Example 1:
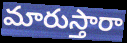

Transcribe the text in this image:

మారుస్తారా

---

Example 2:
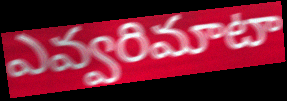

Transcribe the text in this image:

ఎవ్వరిమాటా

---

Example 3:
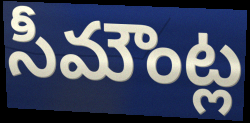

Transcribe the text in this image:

సీమౌంట్ల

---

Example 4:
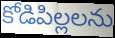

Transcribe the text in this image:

కోడిపిల్లలను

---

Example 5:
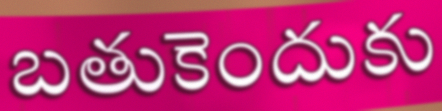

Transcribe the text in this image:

బతుకెందుకు